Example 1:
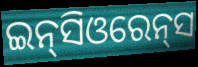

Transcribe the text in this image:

ଇନ୍‌ସିଓରେନ୍‌ସ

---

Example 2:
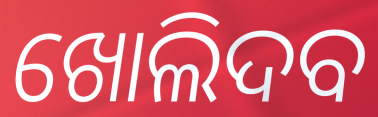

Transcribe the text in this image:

ଖୋଲିଦବ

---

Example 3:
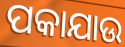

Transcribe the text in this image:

ପକାଯାଉ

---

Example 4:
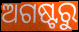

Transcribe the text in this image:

ଅଗଷ୍ଟରୁ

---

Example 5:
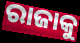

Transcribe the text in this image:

ରାଜାକୁ